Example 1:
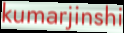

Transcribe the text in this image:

kumarjinshi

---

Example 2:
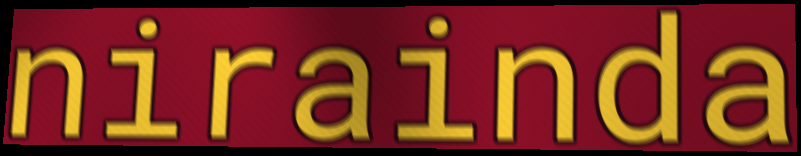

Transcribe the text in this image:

nirainda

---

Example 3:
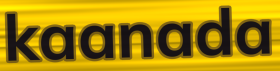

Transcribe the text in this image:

kaanada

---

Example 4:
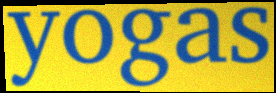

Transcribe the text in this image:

yogas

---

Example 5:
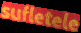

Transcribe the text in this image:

sufletele